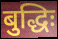
बुद्धिः